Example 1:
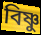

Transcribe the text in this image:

বিষ্ণু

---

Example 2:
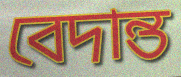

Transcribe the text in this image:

বেদান্ত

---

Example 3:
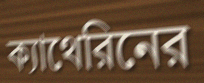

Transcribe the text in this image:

ক্যাথেরিনের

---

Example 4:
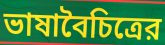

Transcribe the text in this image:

ভাষাবৈচিত্রের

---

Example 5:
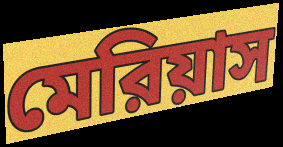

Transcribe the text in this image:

মেরিয়াস